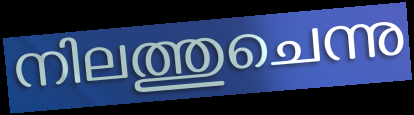
നിലത്തുചെന്നു